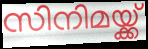
സിനിമയ്ക്ക്